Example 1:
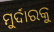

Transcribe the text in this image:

ମୁର୍ଦାରକୁ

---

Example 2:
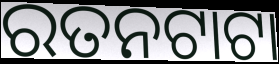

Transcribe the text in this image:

ରତନଟାଟା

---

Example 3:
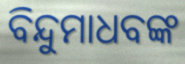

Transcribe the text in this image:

ବିନ୍ଦୁମାଧବଙ୍କ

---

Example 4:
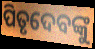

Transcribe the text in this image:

ପିତୃଦେବଙ୍କୁ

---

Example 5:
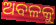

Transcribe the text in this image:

ଅବଳକୁ